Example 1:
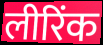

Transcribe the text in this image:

लीरिंक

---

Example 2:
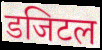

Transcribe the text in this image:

डजिटल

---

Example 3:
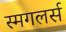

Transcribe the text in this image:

स्‍मगलर्स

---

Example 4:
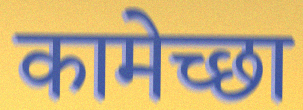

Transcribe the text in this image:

कामेच्छा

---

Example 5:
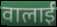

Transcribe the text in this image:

वालाई